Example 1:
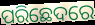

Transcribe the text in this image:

ପରିଛେଦରେ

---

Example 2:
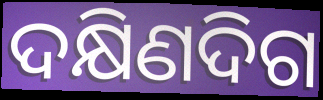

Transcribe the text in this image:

ଦକ୍ଷିଣଦିଗ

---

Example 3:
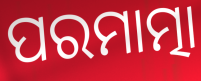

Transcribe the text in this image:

ପରମାତ୍ମା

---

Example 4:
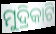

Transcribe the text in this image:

ମୁଦ୍ରିକାଟି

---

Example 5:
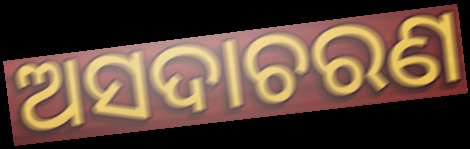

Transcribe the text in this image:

ଅସଦାଚରଣ